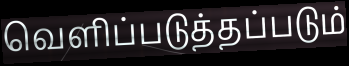
வெளிப்படுத்தப்படும்